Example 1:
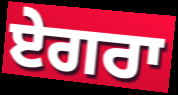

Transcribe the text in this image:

ਏਗਰਾ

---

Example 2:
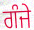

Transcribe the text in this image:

ਗੰਜੇ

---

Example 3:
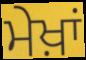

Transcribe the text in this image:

ਮੇਖ਼ਾਂ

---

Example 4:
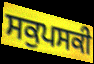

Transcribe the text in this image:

ਸਕੁਪਸਕੀ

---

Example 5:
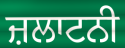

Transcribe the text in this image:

ਜ਼ਲਾਟਨੀ